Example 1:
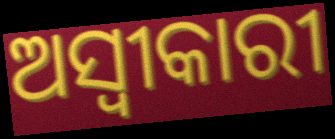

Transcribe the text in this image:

ଅସ୍ଵୀକାରୀ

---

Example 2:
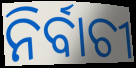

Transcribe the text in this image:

ନିର୍ବାଚୀ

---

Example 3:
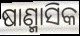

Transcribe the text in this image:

ଷାଣ୍ମାସିକ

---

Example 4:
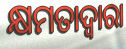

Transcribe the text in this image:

କ୍ଷମତାଦ୍ୱାରା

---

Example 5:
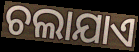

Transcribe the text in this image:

ଚଲାଯାଏ